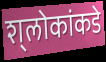
श्लोकांकडे